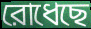
রোধেছে